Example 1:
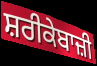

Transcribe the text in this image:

ਸ਼ਰੀਕੇਬਾਜ਼ੀ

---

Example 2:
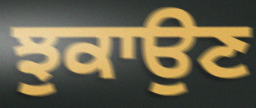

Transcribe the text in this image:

ਝੁਕਾਉਣ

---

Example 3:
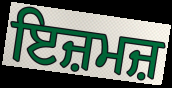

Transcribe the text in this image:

ਇਜ਼ਮਜ਼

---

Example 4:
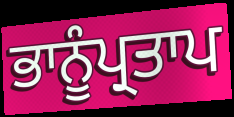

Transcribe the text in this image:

ਭਾਨੂੰਪ੍ਰਤਾਪ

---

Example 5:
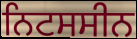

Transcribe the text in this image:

ਨਿਟਸਸੀਨ